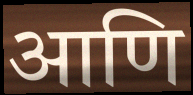
आणि